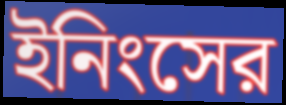
ইনিংসের